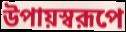
উপায়স্বরূপে